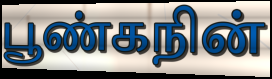
பூண்கநின்